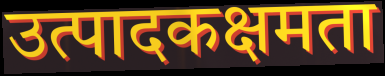
उत्पादकक्षमता